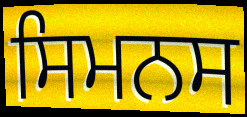
ਸਿਮਨਸ